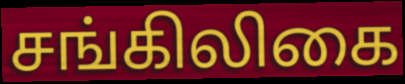
சங்கிலிகை